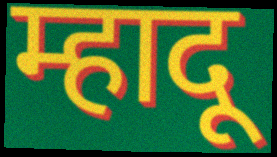
म्हादू